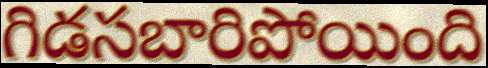
గిడసబారిపోయింది